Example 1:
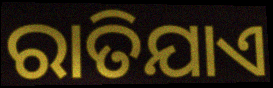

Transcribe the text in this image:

ରାତିଯାଏ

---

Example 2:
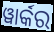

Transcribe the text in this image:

ୱାର୍କର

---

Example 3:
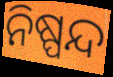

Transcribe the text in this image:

ନିଷ୍ପନ୍ଦ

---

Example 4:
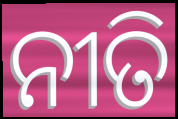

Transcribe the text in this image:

ନୀତି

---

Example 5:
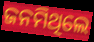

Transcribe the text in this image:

ଜନମିଥିଲେ